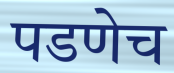
पडणेच